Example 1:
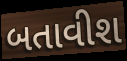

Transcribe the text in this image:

બતાવીશ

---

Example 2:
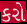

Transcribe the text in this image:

કરો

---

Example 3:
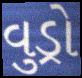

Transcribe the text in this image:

વુડ્રો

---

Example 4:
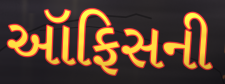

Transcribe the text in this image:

ઑફિસની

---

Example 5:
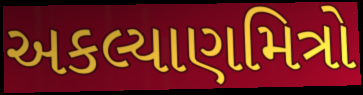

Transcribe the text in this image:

અકલ્યાણમિત્રો